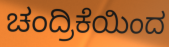
ಚಂದ್ರಿಕೆಯಿಂದ